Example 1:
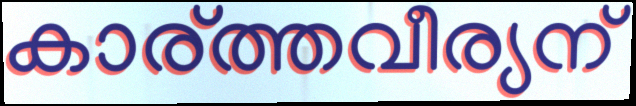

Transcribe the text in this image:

കാര്ത്തവീര്യന്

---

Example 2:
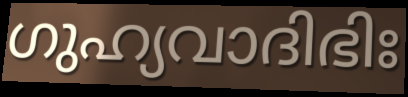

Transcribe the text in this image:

ഗുഹ്യവാദിഭിഃ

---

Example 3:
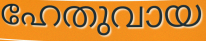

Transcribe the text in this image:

ഹേതുവായ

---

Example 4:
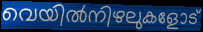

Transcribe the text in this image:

വെയിൽനിഴലുകളോട്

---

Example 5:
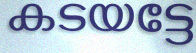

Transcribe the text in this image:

കടയട്ടേ